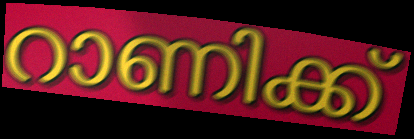
റാണിക്ക്